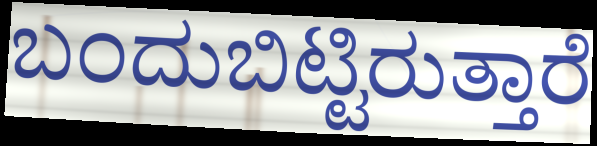
ಬಂದುಬಿಟ್ಟಿರುತ್ತಾರೆ